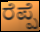
ರೆಪ್ಪೆ